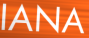
IANA